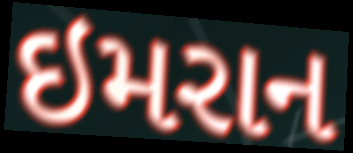
ઇમરાન